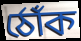
ঠোঁক